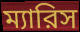
ম্যারিস